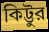
কিট্টুর